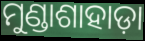
ମୁଣ୍ଡାଶାହାଡ଼ା